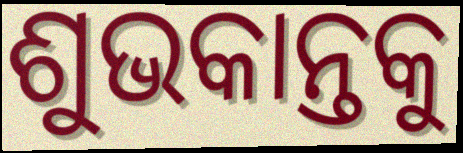
ଶୁଭକାନ୍ତକୁ